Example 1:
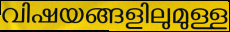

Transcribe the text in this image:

വിഷയങ്ങളിലുമുള്ള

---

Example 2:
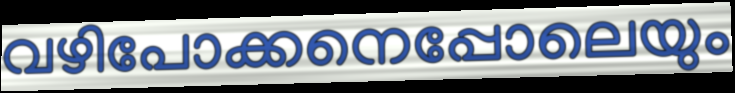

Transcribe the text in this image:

വഴിപോക്കനെപ്പോലെയും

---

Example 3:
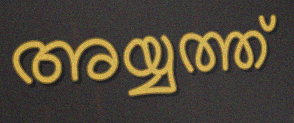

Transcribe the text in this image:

അയ്യത്ത്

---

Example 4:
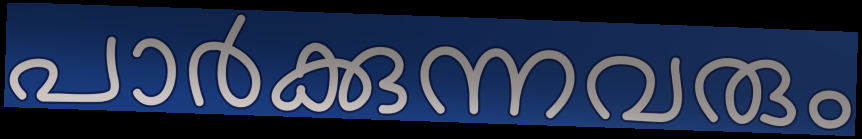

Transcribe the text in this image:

പാർക്കുന്നവരും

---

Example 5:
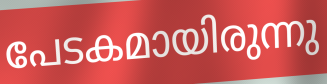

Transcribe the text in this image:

പേടകമായിരുന്നു